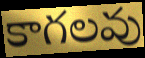
కాగలవు